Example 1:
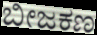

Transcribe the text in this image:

ಬೀಜಕಣ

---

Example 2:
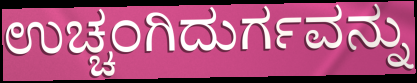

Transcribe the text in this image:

ಉಚ್ಚಂಗಿದುರ್ಗವನ್ನು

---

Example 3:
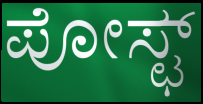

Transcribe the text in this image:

ಪೋಸ್ಟ್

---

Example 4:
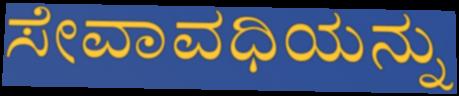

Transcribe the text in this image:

ಸೇವಾವಧಿಯನ್ನು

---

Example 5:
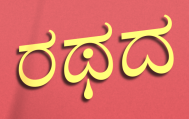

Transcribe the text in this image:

ರಥದ